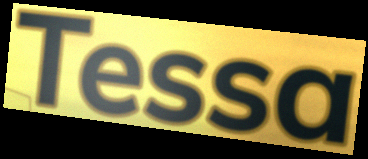
Tessa